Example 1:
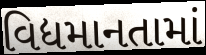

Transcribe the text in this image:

વિદ્યમાનતામાં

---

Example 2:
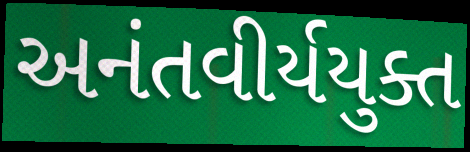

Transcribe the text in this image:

અનંતવીર્યયુક્ત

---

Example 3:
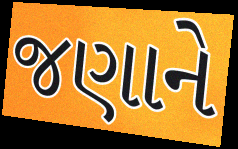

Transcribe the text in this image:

જણાને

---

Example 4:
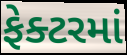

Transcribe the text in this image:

ફેક્ટરમાં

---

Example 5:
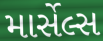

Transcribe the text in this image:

માર્સેલ્સ